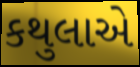
કથુલાએ